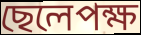
ছেলেপক্ষ